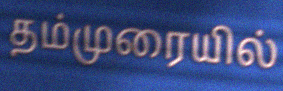
தம்முரையில்